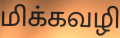
மிக்கவழி